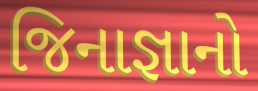
જિનાજ્ઞાનો